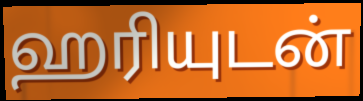
ஹரியுடன்